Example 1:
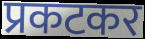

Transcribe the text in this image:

प्रकटकर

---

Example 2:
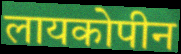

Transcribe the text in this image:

लायकोपीन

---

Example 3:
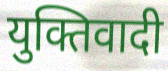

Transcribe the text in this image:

युक्तिवादी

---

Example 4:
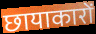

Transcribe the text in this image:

छायाकारों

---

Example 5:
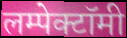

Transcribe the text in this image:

लम्पेक्टॉमी